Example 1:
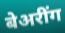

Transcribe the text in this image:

बेअरींग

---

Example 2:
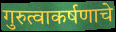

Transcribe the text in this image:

गुरुत्वाकर्षणाचे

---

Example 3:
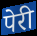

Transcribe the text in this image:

पेरी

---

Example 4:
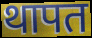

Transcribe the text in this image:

थापत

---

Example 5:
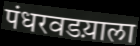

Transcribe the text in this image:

पंधरवडय़ाला